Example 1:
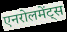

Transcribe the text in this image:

एनरोलमेंट्स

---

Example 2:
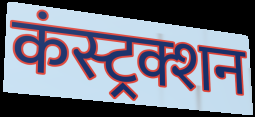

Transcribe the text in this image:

कंस्‍ट्रक्‍शन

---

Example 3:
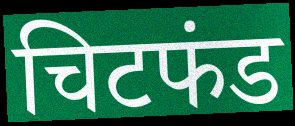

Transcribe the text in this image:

चिटफंड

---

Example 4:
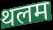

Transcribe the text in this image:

थलम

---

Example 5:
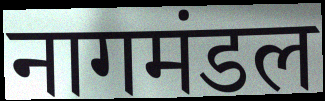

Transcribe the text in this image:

नागमंडल